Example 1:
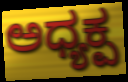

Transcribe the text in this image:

ಅಧ್ಯಕ್ಪ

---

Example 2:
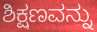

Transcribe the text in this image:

ಶಿಕ್ಷಣವನ್ನು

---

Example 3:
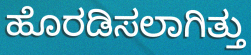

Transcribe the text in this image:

ಹೊರಡಿಸಲಾಗಿತ್ತು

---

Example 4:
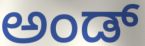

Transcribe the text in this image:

ಅಂಡ್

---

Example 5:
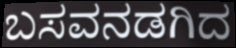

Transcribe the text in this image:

ಬಸವನಡಗಿದ